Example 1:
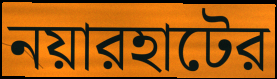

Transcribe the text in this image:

নয়ারহাটের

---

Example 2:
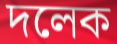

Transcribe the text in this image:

দলেক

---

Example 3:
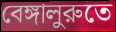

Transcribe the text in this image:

বেঙ্গালুরুতে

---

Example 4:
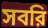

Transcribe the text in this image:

সবরি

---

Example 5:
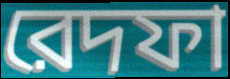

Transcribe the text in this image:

রেদফা